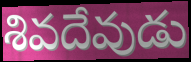
శివదేవుడు